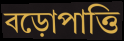
বড়োপাত্তি